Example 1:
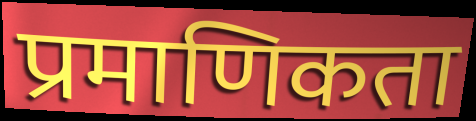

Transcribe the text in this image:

प्रमाणिकता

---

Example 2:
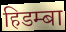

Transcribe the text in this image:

हिडम्बा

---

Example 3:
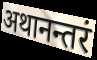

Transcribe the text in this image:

अथानन्तरं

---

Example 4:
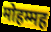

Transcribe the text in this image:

मोहम्मह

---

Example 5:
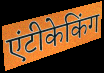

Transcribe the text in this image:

एंटीकेकिंग